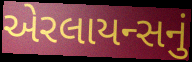
એરલાયન્સનું